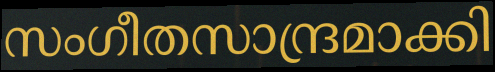
സംഗീതസാന്ദ്രമാക്കി